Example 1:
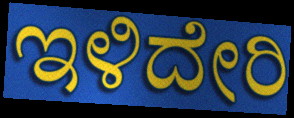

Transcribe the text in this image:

ಇಳಿದೇರಿ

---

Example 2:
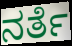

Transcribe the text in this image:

ನರ್ತೆ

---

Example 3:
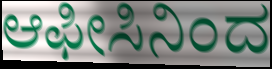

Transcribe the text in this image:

ಆಫೀಸಿನಿಂದ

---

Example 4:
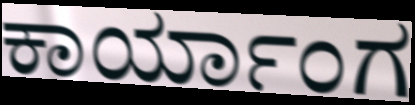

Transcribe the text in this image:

ಕಾರ್ಯಾಂಗ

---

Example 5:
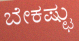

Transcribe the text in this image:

ಬೇಕಷ್ಟು